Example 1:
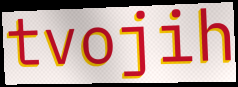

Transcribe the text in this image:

tvojih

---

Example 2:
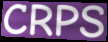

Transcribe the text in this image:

CRPS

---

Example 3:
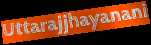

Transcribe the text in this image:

Uttarajjhayanani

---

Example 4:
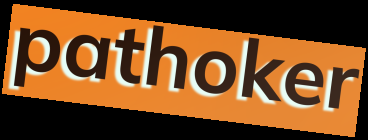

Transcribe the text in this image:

pathoker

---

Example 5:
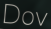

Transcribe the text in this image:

Dov